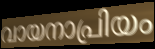
വായനാപ്രിയം